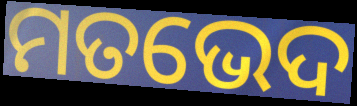
ମତଭେଦ